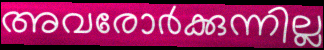
അവരോർക്കുന്നില്ല